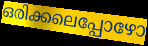
ഒരിക്കലെപ്പോഴോ